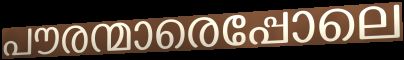
പൗരന്മാരെപ്പോലെ